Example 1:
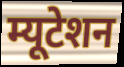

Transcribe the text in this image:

म्यूटेशन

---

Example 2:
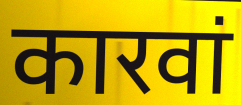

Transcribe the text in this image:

कारवां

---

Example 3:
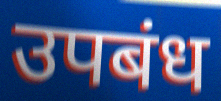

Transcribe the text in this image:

उपबंध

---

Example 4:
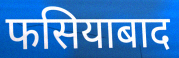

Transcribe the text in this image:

फसियाबाद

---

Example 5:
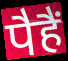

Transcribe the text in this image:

पैहैं